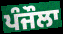
ਪੰਜੌਲਾ